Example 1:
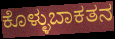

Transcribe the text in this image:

ಕೊಳ್ಳುಬಾಕತನ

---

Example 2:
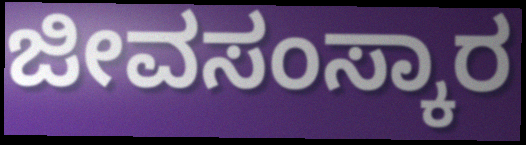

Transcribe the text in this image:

ಜೀವಸಂಸ್ಕಾರ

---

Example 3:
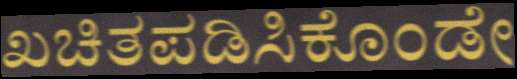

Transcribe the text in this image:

ಖಚಿತಪಡಿಸಿಕೊಂಡೇ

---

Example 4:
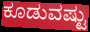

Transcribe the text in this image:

ಕೂಡುವಷ್ಟು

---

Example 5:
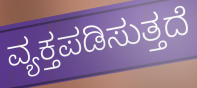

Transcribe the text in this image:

ವ್ಯಕ್ತಪಡಿಸುತ್ತದೆ